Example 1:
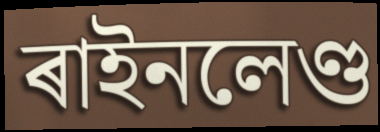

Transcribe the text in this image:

ৰাইনলেণ্ড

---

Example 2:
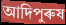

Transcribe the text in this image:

আদিপুৰুষ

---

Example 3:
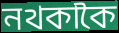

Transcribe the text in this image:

নথকাকৈ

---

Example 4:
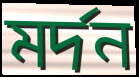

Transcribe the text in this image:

মৰ্দন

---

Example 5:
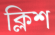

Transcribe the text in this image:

ক্লিশ